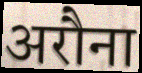
अरौना